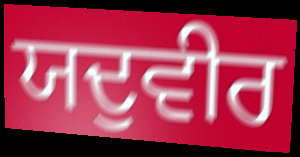
ਯਦੁਵੀਰ